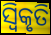
ସ୍ୱିକୃତି